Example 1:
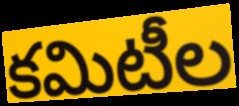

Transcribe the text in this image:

కమిటీల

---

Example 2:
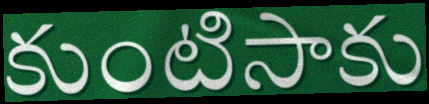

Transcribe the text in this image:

కుంటిసాకు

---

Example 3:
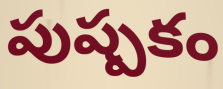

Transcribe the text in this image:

పుష్పకం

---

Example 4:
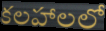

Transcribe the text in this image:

కలహాలలో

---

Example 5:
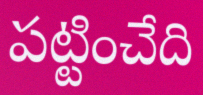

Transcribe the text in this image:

పట్టించేది